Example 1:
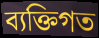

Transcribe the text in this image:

ব্যক্তিগত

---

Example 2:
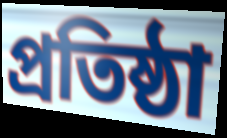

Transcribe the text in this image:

প্ৰতিষ্ঠা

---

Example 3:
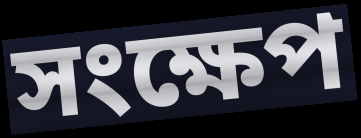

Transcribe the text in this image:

সংক্ষেপ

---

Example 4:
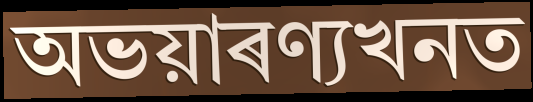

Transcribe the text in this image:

অভয়াৰণ্যখনত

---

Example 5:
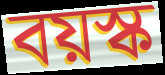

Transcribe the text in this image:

বয়স্ক